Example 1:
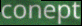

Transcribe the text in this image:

conept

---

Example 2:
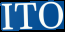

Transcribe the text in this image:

ITO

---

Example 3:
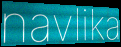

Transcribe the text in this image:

navlika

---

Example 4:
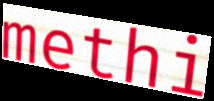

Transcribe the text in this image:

methi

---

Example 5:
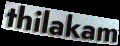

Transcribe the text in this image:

thilakam